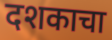
दशकाचा